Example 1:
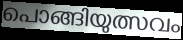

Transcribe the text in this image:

പൊങ്ങിയുത്സവം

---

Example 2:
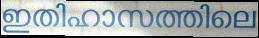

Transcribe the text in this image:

ഇതിഹാസത്തിലെ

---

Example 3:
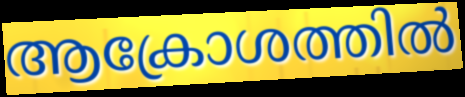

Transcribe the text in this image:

ആക്രോശത്തിൽ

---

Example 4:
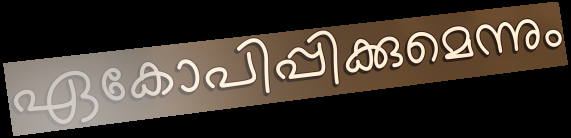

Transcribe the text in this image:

ഏകോപിപ്പിക്കുമെന്നും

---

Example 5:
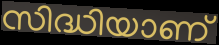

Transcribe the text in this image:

സിദ്ധിയാണ്